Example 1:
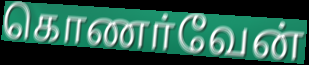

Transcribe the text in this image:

கொணர்வேன்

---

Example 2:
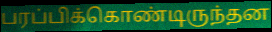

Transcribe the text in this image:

பரப்பிக்கொண்டிருந்தன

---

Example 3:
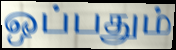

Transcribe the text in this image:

ஒப்பதும்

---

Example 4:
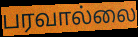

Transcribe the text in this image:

பரவால்லை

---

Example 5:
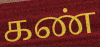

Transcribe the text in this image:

கண்